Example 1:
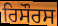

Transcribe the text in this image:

ਰਿਸੌਰਸ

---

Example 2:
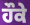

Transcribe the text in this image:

ਹੌਕੇ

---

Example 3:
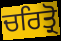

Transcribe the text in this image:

ਚਰਿਤ੍ਰੋ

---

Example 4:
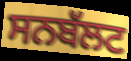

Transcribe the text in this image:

ਸਨਬੱਲਟ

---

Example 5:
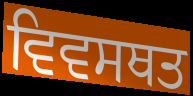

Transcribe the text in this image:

ਵਿਵਸਥਤ